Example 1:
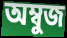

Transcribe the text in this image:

অম্বুজ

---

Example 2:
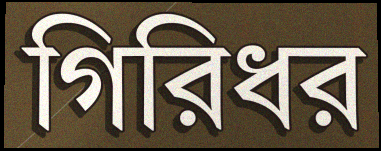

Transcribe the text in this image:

গিরিধর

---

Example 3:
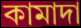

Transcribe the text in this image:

কামাদা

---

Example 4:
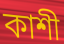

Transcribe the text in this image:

কাশী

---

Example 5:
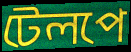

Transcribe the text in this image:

টেলপে